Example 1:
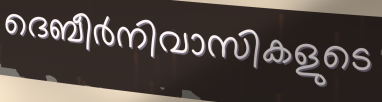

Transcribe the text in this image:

ദെബീർനിവാസികളുടെ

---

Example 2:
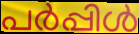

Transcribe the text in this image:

പർപ്പിൾ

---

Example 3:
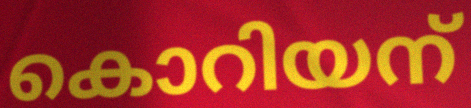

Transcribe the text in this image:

കൊറിയന്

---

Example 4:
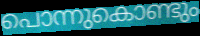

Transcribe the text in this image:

പൊന്നുകൊണ്ടും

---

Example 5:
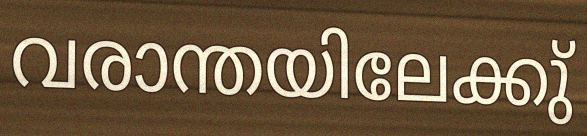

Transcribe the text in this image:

വരാന്തയിലേക്കു്